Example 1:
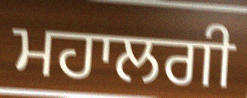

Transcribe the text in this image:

ਮਹਾਲਗੀ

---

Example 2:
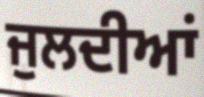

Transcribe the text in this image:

ਜੁਲਦੀਆਂ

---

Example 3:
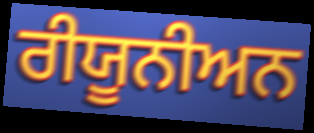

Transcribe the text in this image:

ਰੀਯੂਨੀਅਨ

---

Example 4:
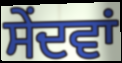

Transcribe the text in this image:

ਸੇਂਦਵਾਂ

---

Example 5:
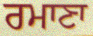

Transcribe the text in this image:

ਰਮਾਣਾ